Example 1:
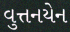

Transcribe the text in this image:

વુત્તનયેન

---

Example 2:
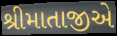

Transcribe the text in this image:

શ્રીમાતાજીએ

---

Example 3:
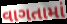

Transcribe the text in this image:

વાગતામાં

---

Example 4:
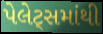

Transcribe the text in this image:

પેલેટ્સમાંથી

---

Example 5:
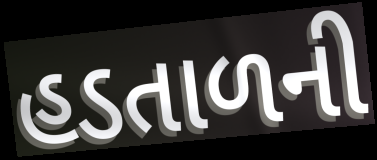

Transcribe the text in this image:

હડતાળની